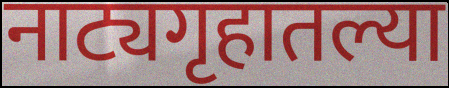
नाट्यगृहातल्या